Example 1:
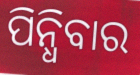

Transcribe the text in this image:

ପିନ୍ଧିବାର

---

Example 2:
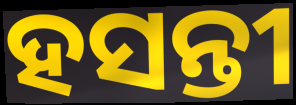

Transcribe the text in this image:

ହସନ୍ତୀ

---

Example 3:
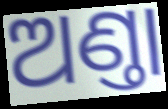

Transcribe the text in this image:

ଅଣ୍ତା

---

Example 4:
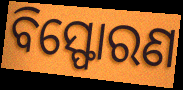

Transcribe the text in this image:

ବିସ୍ଫୋରଣ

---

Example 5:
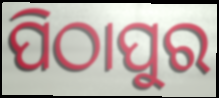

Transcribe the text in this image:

ପିଠାପୁର